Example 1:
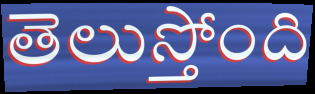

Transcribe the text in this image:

తెలుస్తోంది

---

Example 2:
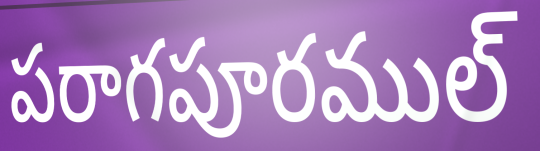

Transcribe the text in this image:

పరాగపూరముల్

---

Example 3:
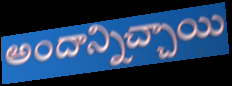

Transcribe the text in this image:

అందాన్నిచ్చాయి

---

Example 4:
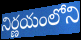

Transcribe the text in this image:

నిర్ణయంలోని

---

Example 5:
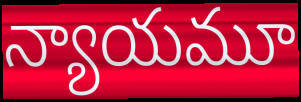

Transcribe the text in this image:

న్యాయమూ